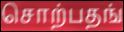
சொற்பதங்